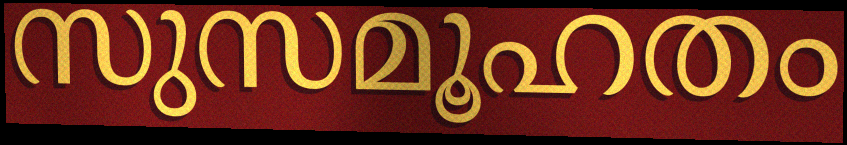
സുസമൂഹതം